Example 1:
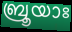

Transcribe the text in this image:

ബ്രൂയാഃ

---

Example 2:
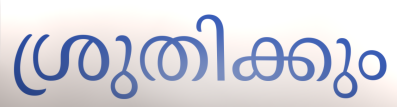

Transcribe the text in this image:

ശ്രുതിക്കും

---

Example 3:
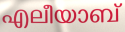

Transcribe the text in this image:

എലീയാബ്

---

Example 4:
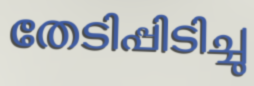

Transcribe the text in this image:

തേടിപ്പിടിച്ചു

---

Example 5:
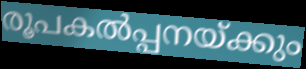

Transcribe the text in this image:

രൂപകൽപ്പനയ്ക്കും